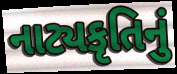
નાટ્યકૃતિનું